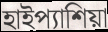
হাইপ্যাশিয়া